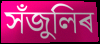
সঁজুলিৰ